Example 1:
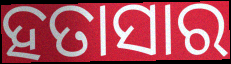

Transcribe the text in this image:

ହତାସାର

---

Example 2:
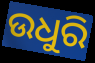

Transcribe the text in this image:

ଉଧୁରି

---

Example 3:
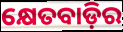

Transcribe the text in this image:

କ୍ଷେତବାଡ଼ିର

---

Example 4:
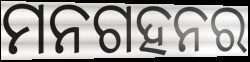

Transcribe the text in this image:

ମନଗହନର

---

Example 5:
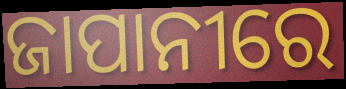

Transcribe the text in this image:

ଜାପାନୀରେ